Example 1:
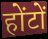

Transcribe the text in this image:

होंटों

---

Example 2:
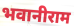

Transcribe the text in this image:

भवानीराम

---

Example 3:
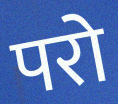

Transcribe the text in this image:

परो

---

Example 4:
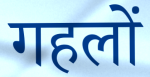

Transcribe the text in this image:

गहलों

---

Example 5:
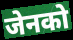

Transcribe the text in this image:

जेनको